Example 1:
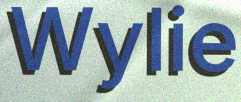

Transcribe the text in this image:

Wylie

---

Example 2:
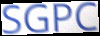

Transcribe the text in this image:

SGPC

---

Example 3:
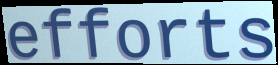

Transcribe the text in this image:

efforts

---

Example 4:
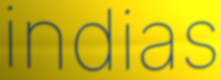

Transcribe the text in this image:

indias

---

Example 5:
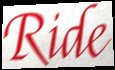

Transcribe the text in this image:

Ride